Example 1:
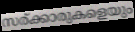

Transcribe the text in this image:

സര്ക്കാരുകളെയും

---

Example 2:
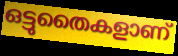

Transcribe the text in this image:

ഒട്ടുതൈകളാണ്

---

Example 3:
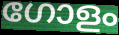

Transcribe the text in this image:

ഗോളം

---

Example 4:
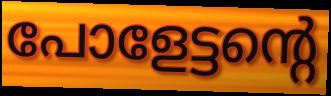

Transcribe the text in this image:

പോളേട്ടന്റെ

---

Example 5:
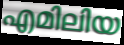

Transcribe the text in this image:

എമിലിയ